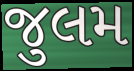
જુલમ